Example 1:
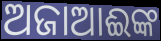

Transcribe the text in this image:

ଅଜାଆଈଙ୍କ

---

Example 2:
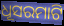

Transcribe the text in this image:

ଧୂସରମାଟି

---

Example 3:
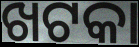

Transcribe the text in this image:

ଖଟକା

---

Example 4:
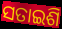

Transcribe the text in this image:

ସତାଇଶି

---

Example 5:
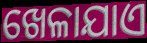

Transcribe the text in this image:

ଖେଳାଯାଏ